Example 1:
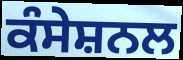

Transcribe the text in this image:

ਕੰਸੇਸ਼ਨਲ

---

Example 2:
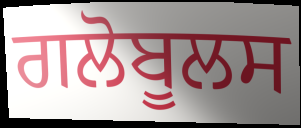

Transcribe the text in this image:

ਗਲੋਬੂਲਸ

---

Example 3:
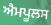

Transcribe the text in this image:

ਐਮਪੂਲਸ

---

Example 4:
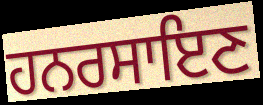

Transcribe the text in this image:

ਹਨਰਸਾਇਣ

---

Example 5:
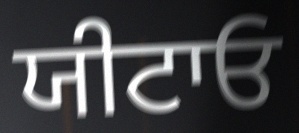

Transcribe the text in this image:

ਯੀਟਾਓ